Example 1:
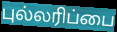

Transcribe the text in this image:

புல்லரிப்பை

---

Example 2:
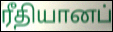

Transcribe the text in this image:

ரீதியானப்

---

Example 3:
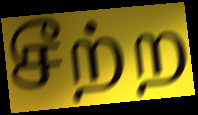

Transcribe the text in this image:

சீற்ற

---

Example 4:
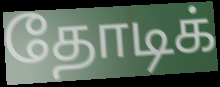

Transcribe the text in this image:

தோடிக்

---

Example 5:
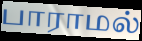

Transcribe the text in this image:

பாராமல்